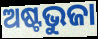
ଅଷ୍ଟଭୁଜା